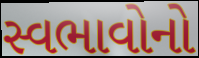
સ્વભાવોનો